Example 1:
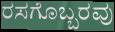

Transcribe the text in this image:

ರಸಗೊಬ್ಬರವು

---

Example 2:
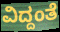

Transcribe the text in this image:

ವಿದ್ದಂತೆ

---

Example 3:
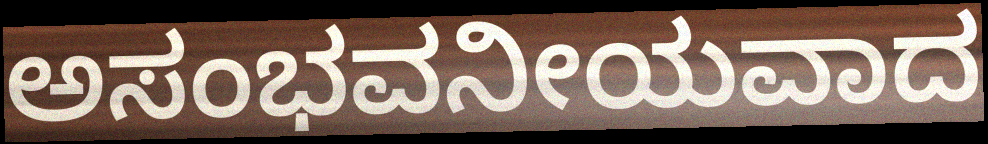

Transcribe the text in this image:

ಅಸಂಭವನೀಯವಾದ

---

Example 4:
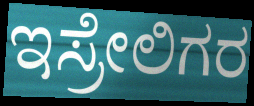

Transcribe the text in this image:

ಇಸ್ರೇಲಿಗರ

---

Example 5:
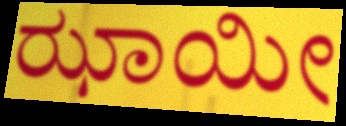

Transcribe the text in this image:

ಝಾಯೀ